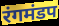
रंगमंडप